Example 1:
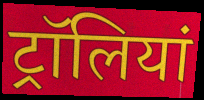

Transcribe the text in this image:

ट्रॉलियां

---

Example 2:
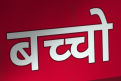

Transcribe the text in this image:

बच्चो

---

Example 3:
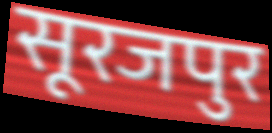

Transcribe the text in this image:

सूरजपुर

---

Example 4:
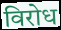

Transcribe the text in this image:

विरोध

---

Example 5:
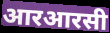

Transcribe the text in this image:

आरआरसी